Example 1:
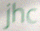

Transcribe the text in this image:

jhc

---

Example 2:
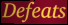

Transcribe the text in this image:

Defeats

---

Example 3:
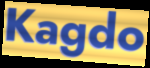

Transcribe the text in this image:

Kagdo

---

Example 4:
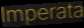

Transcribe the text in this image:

Imperata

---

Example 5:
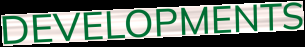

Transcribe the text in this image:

DEVELOPMENTS